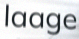
laage